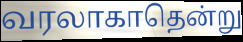
வரலாகாதென்று